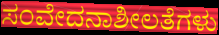
ಸಂವೇದನಾಶೀಲತೆಗಳು